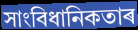
সাংবিধানিকতাৰ